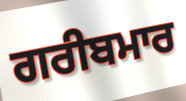
ਗਰੀਬਮਾਰ